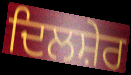
ਦਿਲਸ਼ੇਰ